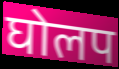
घोलप